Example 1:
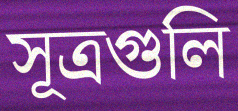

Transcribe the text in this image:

সূত্রগুলি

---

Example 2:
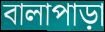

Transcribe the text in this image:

বালাপাড়া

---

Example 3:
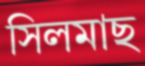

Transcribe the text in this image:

সিলমাছ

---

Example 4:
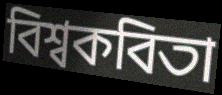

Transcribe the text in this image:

বিশ্বকবিতা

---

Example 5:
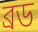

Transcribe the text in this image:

ব্রড